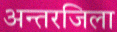
अन्तरजिला